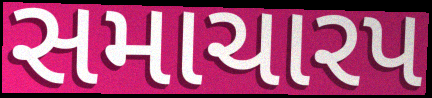
સમાચારપ